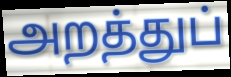
அறத்துப்